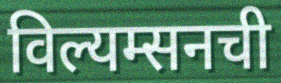
विल्यम्सनची